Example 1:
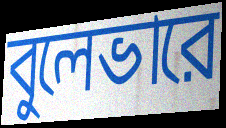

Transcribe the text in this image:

বুলেভারে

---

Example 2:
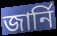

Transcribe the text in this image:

জার্নি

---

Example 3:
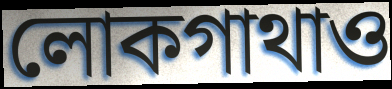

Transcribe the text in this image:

লোকগাথাও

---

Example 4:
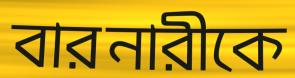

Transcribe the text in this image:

বারনারীকে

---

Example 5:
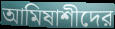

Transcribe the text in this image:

আমিষাশীদের